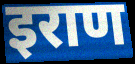
इराण